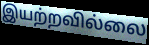
இயற்றவில்லை